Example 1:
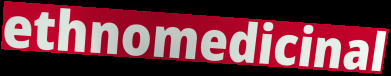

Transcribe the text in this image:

ethnomedicinal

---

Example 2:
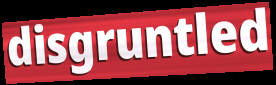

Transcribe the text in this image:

disgruntled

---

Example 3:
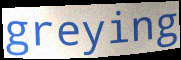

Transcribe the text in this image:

greying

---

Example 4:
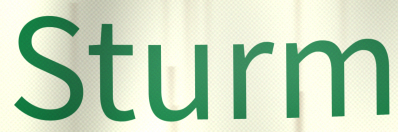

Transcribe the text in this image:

Sturm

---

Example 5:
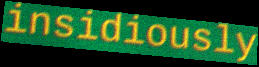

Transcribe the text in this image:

insidiously